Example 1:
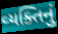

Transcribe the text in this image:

વ્‍યક્તિનું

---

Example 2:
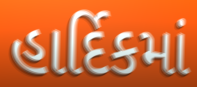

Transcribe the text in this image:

હાર્દિકમાં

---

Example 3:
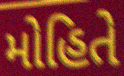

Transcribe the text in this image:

મોહિતે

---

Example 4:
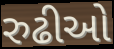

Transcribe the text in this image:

રુઢીઓ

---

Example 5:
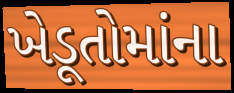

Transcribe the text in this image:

ખેડૂતોમાંના